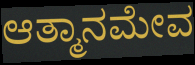
ಆತ್ಮಾನಮೇವ